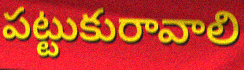
పట్టుకురావాలి